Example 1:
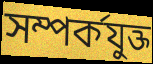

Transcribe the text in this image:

সম্পৰ্কযুক্ত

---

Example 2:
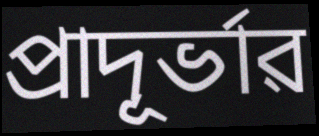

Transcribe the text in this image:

প্ৰাদূৰ্ভাৱ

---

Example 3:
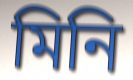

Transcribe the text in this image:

মিনি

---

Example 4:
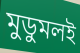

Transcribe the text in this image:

মুডুমলই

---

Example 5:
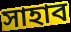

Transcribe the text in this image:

সাহাব